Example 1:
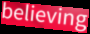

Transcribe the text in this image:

believing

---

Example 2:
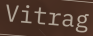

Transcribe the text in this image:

Vitrag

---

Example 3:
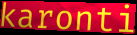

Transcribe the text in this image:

karonti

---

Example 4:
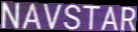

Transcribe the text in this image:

NAVSTAR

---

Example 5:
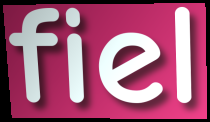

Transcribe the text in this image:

fiel